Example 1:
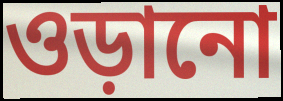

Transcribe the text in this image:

ওড়ানো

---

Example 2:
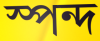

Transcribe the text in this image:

স্পন্দ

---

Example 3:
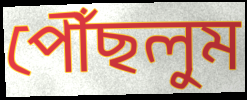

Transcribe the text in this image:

পৌঁছলুম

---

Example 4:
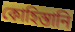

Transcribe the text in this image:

কোহিস্তানি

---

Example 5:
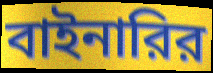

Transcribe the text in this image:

বাইনারির